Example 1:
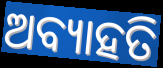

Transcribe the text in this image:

ଅବ୍ୟାହତି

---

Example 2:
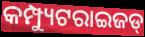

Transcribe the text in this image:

କମ୍ପ୍ୟୁଟରାଇଜଡ୍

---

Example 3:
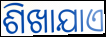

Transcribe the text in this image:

ଶିଖାଯାଏ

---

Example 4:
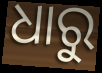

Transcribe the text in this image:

ଧାରୁ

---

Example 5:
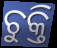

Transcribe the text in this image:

ଚୁକ୍ତି